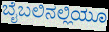
ಬೈಬಲಿನಲ್ಲಿಯೂ